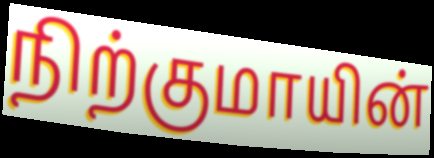
நிற்குமாயின்